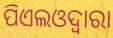
ପିଏଲଓଦ୍ୱାରା